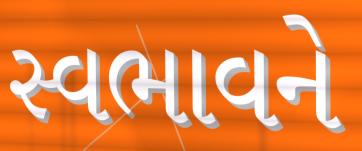
સ્વભાવને